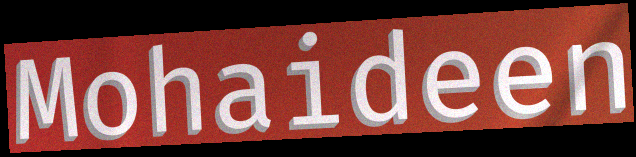
Mohaideen